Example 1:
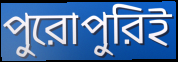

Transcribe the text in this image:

পুরোপুরিই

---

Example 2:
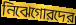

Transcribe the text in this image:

নিঝেগোরদের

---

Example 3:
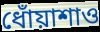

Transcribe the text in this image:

ধোঁয়াশাও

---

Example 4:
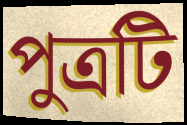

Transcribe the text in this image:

পুত্রটি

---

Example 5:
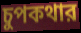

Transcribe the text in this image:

চুপকথার